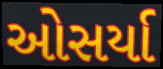
ઓસર્યા